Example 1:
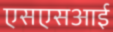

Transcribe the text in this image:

एसएसआई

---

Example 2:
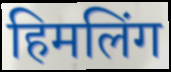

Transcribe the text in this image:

हिमलिंग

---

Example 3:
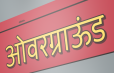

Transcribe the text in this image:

ओवरग्राऊंड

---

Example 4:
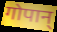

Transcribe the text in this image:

गोपान्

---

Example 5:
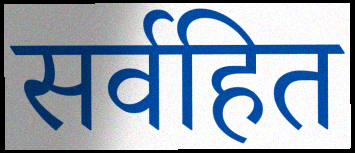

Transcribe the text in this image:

सर्वहित